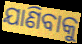
ଯାଣିବାକୁ